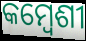
କମ୍ବେଶୀ